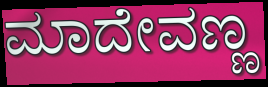
ಮಾದೇವಣ್ಣ